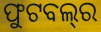
ଫୁଟବଲ୍‍ର